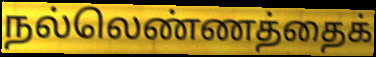
நல்லெண்ணத்தைக்